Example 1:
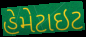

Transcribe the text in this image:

હેમેટાઇટ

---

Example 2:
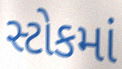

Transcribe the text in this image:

સ્ટોકમાં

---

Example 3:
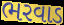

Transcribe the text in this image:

ભરવાડ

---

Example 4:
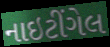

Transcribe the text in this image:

નાઇટીંગેલ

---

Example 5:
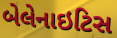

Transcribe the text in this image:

બેલેનાઇટિસ